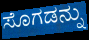
ಸೊಗಡನ್ನು